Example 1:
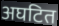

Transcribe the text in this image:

अघटित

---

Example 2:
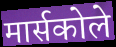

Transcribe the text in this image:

मार्सकोले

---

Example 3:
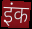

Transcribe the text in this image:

इंक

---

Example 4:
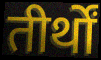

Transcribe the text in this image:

तीर्थों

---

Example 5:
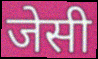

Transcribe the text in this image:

जेसी